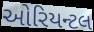
ઓરિયન્ટલ